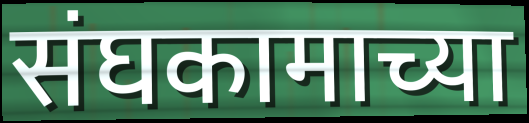
संघकामाच्या